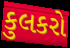
કુલકરો